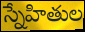
స్నేహితుల